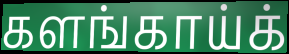
களங்காய்க்